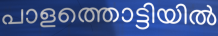
പാളത്തൊട്ടിയിൽ